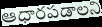
ఆధారపడాలని